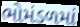
ભોમંડળમાં